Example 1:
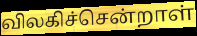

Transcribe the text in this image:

விலகிச்சென்றாள்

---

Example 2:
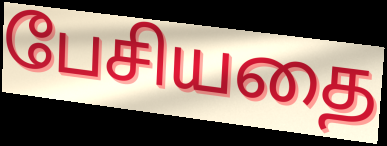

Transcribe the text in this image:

பேசியதை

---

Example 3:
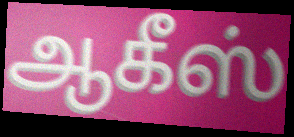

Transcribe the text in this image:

ஆகீஸ்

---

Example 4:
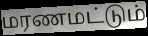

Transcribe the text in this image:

மரணமட்டும்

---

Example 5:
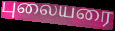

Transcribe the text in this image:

புலையரை